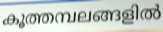
കൂത്തമ്പലങ്ങളിൽ